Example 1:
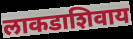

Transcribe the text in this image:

लाकडाशिवाय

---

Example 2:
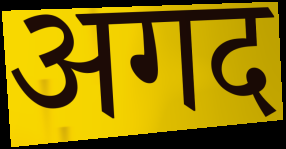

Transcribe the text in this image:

अगद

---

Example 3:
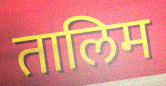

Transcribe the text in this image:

तालिम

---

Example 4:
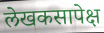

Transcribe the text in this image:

लेखकसापेक्ष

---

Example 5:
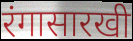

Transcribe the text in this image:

रंगासारखी